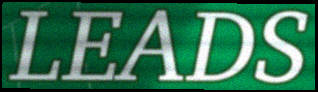
LEADS